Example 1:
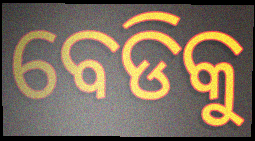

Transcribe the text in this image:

ବେଡିକୁ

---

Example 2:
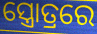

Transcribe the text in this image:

ସ୍ତ୍ରୋତ୍ରରେ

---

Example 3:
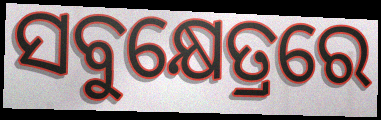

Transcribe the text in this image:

ସବୁକ୍ଷେତ୍ରରେ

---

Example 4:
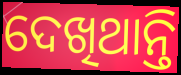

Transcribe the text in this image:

ଦେଖିଥାନ୍ତି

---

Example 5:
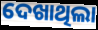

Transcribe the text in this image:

ଦେଖାଥିଲା